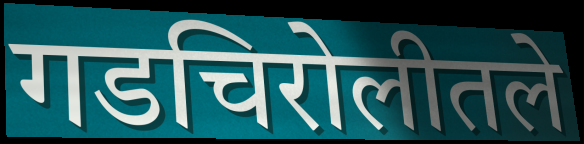
गडचिरोलीतले